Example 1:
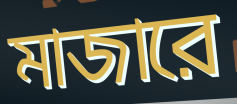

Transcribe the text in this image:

মাজারে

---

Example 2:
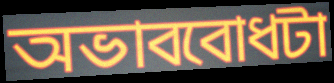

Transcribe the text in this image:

অভাববোধটা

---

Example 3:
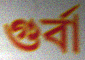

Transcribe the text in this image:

গুর্বা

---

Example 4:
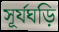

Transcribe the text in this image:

সূর্যঘড়ি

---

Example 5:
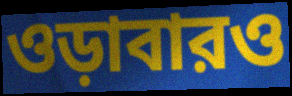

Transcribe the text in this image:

ওড়াবারও